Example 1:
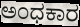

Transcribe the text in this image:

ಅಂಧಕಾರ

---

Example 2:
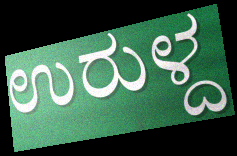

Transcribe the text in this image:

ಉರುಳ್ದ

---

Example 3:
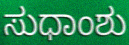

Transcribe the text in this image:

ಸುಧಾಂಶು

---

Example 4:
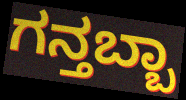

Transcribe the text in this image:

ಗನ್ತಬ್ಬಾ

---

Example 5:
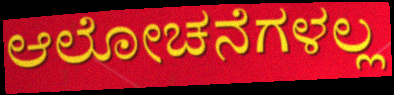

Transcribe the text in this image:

ಆಲೋಚನೆಗಳಲ್ಲ